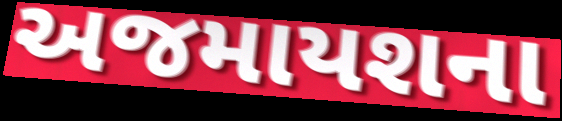
અજમાયશના